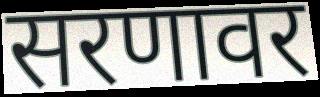
सरणावर